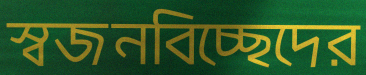
স্বজনবিচ্ছেদের